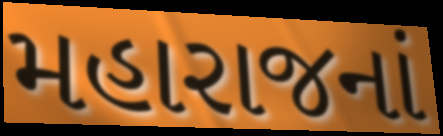
મહારાજનાં